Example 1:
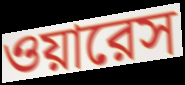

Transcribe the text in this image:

ওয়ারেস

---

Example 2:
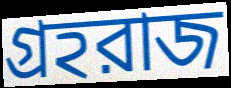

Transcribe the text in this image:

গ্রহরাজ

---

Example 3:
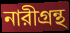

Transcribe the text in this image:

নারীগ্রন্থ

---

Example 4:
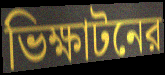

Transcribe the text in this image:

ভিক্ষাটনের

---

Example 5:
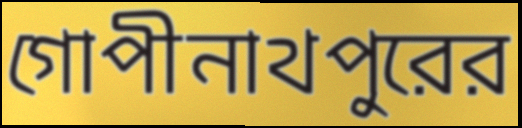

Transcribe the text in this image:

গোপীনাথপুরের